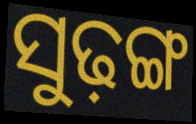
ସୁଢ଼ଙ୍ଗ